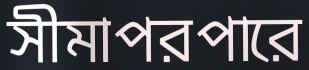
সীমাপরপারে